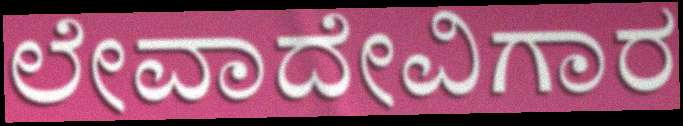
ಲೇವಾದೇವಿಗಾರ